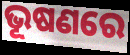
ଭୂଷଣରେ